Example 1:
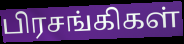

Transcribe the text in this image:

பிரசங்கிகள்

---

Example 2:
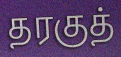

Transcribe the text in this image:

தரகுத்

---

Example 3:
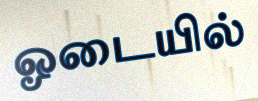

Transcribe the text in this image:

ஓடையில்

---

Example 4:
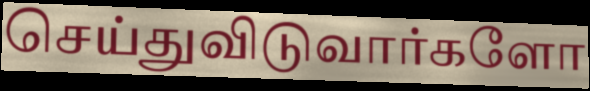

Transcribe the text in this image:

செய்துவிடுவார்களோ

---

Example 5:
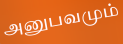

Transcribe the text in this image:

அனுபவமும்